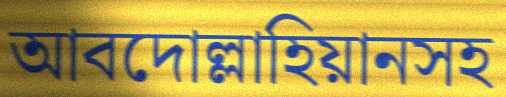
আবদোল্লাহিয়ানসহ